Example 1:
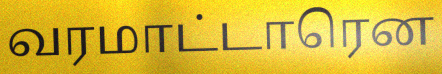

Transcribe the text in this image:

வரமாட்டாரென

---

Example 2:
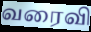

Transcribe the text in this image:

வரைவி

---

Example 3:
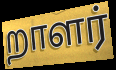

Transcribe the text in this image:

றாளர்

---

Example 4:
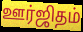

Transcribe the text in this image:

ஊர்ஜிதம்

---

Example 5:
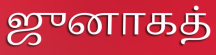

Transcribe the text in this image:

ஜுனாகத்